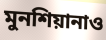
মুনশিয়ানাও